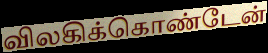
விலகிக்கொண்டேன்